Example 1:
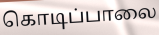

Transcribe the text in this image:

கொடிப்பாலை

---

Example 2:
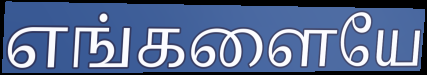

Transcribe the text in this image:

எங்களையே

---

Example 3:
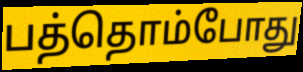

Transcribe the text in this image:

பத்தொம்போது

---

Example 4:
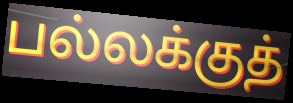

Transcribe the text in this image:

பல்லக்குத்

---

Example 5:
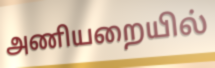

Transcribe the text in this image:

அணியறையில்